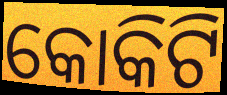
କୋକିଟି